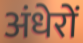
अंधेरों